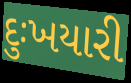
દુઃખયારી